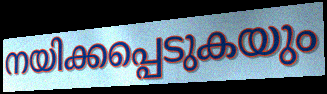
നയിക്കപ്പെടുകയും